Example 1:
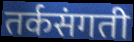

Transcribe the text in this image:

तर्कसंगती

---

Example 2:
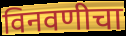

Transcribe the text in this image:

विनवणीचा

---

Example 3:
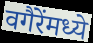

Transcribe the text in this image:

वगैरेंमध्ये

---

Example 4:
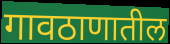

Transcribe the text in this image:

गावठाणातील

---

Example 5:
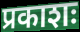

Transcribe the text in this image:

प्रकाशः